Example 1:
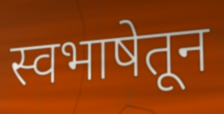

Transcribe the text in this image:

स्वभाषेतून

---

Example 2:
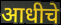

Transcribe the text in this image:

आधीचे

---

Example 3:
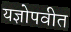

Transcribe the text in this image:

यज्ञोपवीत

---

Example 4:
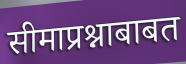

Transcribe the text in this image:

सीमाप्रश्नाबाबत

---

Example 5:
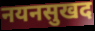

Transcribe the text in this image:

नयनसुखद